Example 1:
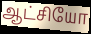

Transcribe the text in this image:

ஆட்சியோ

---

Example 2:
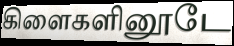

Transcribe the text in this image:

கிளைகளினூடே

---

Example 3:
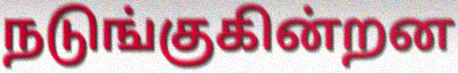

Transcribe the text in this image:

நடுங்குகின்றன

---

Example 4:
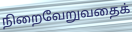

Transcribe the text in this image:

நிறைவேறுவதைக்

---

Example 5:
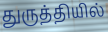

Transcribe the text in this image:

துருத்தியில்